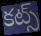
కట్స్